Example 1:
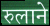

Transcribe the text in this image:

रुलाने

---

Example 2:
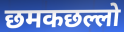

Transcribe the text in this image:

छमकछल्लो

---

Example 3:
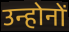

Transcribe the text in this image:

उन्होनों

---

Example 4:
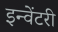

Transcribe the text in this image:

इन्वेंटरी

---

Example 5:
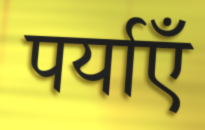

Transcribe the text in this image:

पर्याएँ